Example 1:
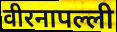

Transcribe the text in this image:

वीरनापल्ली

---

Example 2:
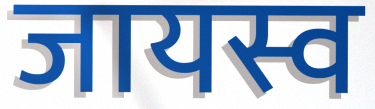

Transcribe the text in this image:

जायस्व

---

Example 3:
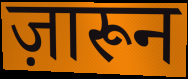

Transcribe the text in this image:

ज़ारून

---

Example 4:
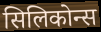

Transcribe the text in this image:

सिलिकोन्स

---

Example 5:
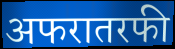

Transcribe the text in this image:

अफरातरफी